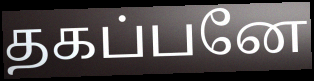
தகப்பனே